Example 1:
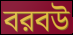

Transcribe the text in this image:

বরবউ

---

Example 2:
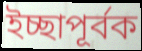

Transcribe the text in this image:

ইচ্ছাপূর্বক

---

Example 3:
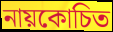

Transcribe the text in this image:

নায়কোচিত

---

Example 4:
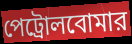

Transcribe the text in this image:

পেট্রোলবোমার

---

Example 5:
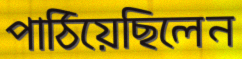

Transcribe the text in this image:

পাঠিয়েছিলেন